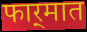
फार्मात